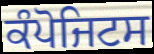
ਕੰਪੋਜਿਟਸ